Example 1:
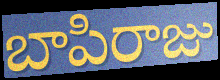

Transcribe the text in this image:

బాపిరాజు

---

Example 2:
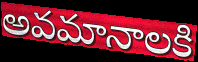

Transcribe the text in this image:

అవమానాలకి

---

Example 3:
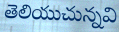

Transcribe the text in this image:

తెలియుచున్నవి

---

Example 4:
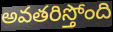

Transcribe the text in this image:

అవతరిస్తోంది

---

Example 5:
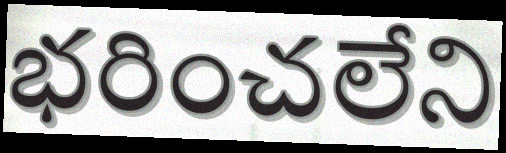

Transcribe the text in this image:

భరించలేని